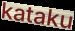
kataku